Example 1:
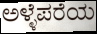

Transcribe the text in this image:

ಅಳ್ಳೆಪರೆಯ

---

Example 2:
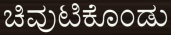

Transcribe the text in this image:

ಚಿವುಟಿಕೊಂಡು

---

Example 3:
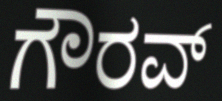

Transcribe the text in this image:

ಗೌರವ್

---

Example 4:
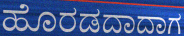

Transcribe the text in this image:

ಹೊರಡದಾದಾಗ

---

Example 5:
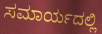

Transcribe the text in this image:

ಸಮಾರ್ಯದಲ್ಲಿ